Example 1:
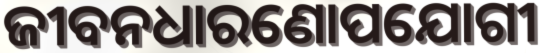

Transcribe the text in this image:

ଜୀବନଧାରଣୋପଯୋଗୀ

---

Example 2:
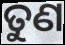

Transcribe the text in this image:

ତୁଣ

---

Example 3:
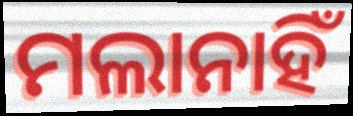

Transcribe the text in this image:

ମଲାନାହିଁ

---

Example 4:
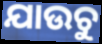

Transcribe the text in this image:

ଯାଉଚୁ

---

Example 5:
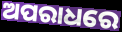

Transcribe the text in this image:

ଅପରାଧରେ